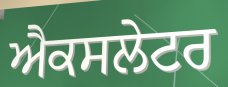
ਐਕਸਲੇਟਰ